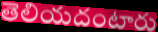
తెలియదంటారు